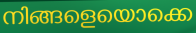
നിങ്ങളെയൊക്കെ